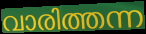
വാരിത്തന്ന